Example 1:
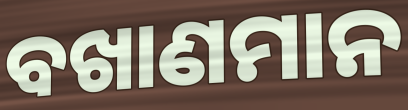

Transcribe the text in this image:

ବଖାଣମାନ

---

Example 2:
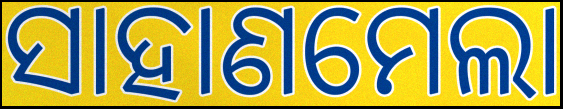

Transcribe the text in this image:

ସାହାଣମେଲା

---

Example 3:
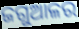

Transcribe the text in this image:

ଜଗୁଆଳର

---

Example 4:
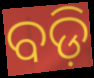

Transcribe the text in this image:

ବଡ଼ି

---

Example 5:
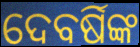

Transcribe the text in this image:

ଦେବର୍ଷିଙ୍କ